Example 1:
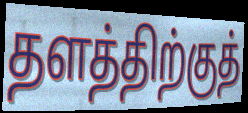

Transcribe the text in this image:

தளத்திற்குத்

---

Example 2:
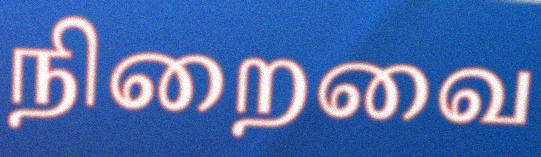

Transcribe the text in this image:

நிறைவை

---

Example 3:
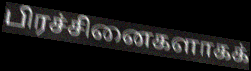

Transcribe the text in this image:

பிரச்சினைகளாகக்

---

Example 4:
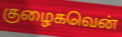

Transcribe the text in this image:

குழைகவென்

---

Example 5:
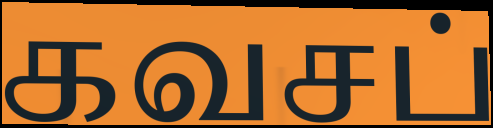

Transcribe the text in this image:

கவசப்